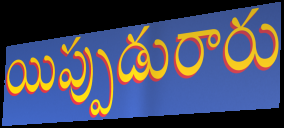
యిప్పుడురారు